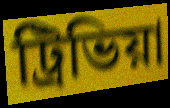
ট্রিভিয়া